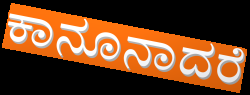
ಕಾನೂನಾದರೆ